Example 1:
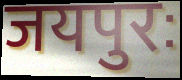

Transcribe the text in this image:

जयपुरः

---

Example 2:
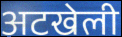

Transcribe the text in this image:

अटखेली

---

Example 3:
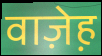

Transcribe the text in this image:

वाज़ेह़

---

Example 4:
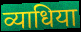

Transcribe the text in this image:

व्याधिया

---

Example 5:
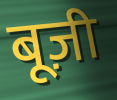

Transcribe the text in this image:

बूज़ी